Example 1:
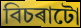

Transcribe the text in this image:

বিচৰাটো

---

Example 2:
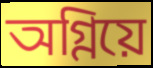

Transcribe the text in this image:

অগ্নিয়ে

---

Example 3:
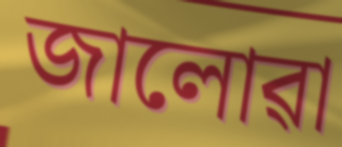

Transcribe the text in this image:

জালোৱা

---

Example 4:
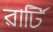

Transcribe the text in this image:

ৱাৰ্টি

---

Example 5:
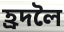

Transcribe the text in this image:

হ্ৰদলৈ